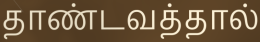
தாண்டவத்தால்